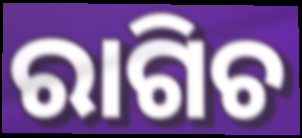
ରାଗିଚ